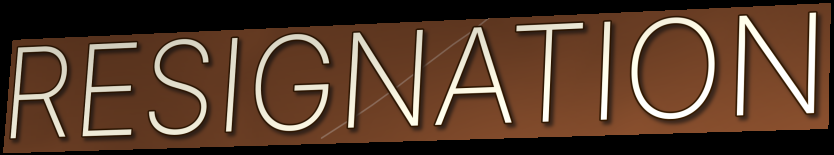
RESIGNATION